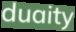
duaity